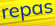
repas